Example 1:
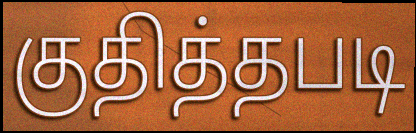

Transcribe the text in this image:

குதித்தபடி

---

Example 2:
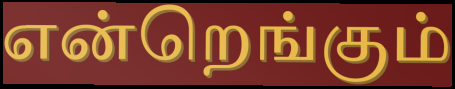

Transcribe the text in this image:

என்றெங்கும்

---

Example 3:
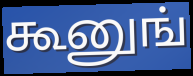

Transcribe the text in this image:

கூனுங்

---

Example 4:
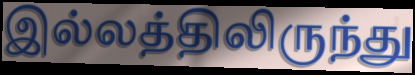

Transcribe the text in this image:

இல்லத்திலிருந்து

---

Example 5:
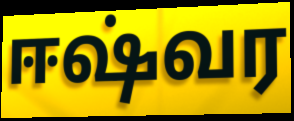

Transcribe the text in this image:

ஈஷ்வர